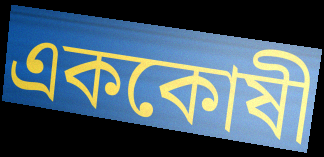
এককোষী